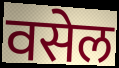
वसेल